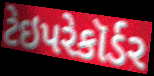
ટેઇપરેકૉર્ડર